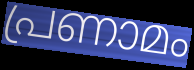
പ്രണാമം